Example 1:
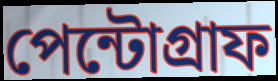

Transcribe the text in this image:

পেন্টোগ্রাফ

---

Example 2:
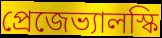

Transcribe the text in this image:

প্রেজেভ্যালস্কি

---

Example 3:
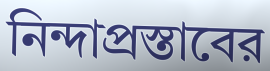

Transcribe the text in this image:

নিন্দাপ্রস্তাবের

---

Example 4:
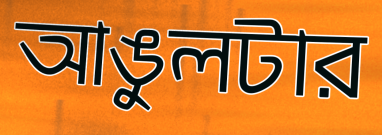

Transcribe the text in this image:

আঙুলটার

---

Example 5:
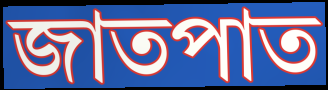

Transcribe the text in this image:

জাতপাত